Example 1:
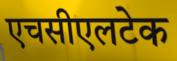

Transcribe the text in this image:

एचसीएलटेक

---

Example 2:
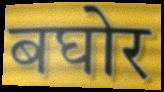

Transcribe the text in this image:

बघोर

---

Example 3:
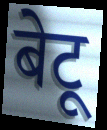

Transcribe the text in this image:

बेटू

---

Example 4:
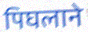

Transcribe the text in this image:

पिघलाने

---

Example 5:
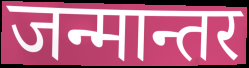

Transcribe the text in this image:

जन्मान्तर